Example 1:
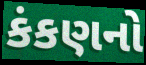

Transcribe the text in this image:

કંકણનો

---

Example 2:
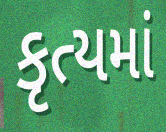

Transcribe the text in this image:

કૃત્યમાં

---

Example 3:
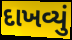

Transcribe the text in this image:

દાખવ્યું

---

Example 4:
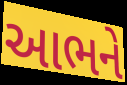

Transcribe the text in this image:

આભને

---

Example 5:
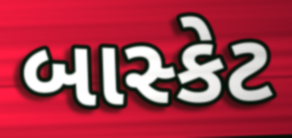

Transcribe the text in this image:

બાસ્કેટ